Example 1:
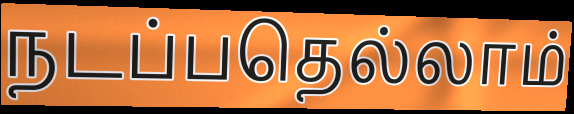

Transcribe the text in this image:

நடப்பதெல்லாம்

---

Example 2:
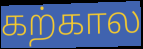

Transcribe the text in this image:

கற்கால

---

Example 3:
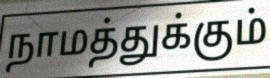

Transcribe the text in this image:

நாமத்துக்கும்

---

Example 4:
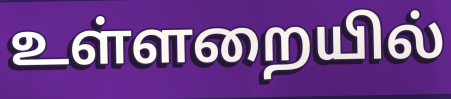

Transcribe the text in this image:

உள்ளறையில்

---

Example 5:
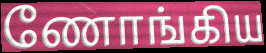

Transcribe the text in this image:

ணோங்கிய